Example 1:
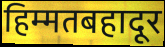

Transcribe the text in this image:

हिम्मतबहादूर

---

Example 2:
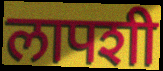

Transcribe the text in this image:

लापशी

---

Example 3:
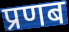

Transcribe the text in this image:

प्रणब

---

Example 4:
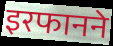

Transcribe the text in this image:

इरफानने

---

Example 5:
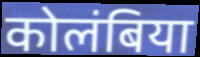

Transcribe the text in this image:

कोलंबिया